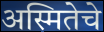
अस्मितेचे